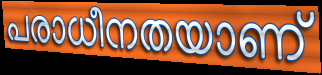
പരാധീനതയാണ്